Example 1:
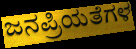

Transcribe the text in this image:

ಜನಪ್ರಿಯತೆಗಳ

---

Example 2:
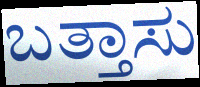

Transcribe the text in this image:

ಬತ್ತಾಸು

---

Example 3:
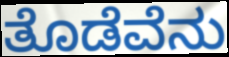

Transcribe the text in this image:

ತೊಡೆವೆನು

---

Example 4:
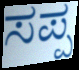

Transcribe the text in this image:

ಸಪ್ಪ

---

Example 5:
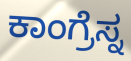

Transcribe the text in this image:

ಕಾಂಗ್ರೆಸ್ನ